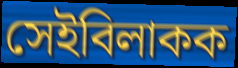
সেইবিলাকক